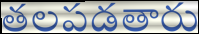
తలపడతారు